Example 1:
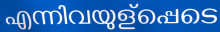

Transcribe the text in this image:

എന്നിവയുള്പ്പെടെ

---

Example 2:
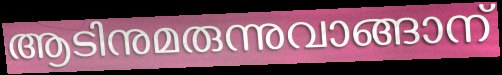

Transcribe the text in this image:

ആടിനുമരുന്നുവാങ്ങാന്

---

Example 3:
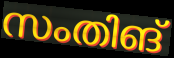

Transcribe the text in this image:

സംതിങ്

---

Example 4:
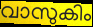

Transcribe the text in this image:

വാസുകിം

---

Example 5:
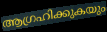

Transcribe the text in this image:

ആഗ്രഹിക്കുകയും